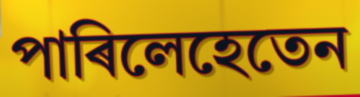
পাৰিলেহেতেন